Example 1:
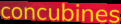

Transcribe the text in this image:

concubines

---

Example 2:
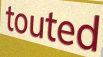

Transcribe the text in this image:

touted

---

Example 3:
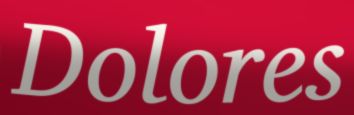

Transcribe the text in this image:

Dolores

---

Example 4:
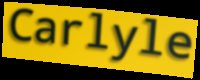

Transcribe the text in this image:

Carlyle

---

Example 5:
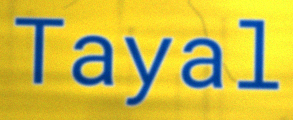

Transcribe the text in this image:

Tayal